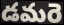
డమరె